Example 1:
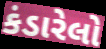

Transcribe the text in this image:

કંડારેલો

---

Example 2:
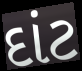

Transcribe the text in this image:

દાંટ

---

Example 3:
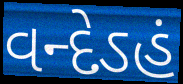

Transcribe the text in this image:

વન્દેઽહં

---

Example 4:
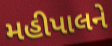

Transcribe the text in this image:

મહીપાલને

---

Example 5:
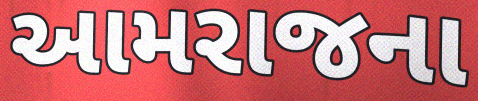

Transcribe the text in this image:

આમરાજના